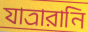
যাত্রারানি